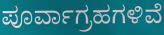
ಪೂರ್ವಾಗ್ರಹಗಳಿವೆ